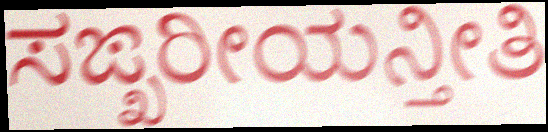
ಸಙ್ಖರೀಯನ್ತೀತಿ